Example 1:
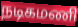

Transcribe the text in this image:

நடிகமணி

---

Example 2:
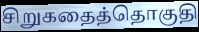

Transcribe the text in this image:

சிறுகதைத்தொகுதி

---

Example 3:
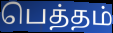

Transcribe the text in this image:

பெத்தம்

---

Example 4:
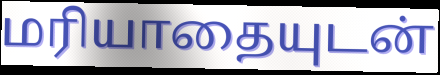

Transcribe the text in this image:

மரியாதையுடன்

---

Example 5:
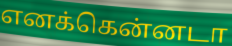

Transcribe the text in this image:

எனக்கென்னடா